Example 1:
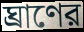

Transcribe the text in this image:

ঘ্রাণের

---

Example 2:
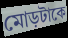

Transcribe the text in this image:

মোড়টাকে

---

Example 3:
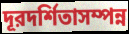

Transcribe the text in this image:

দূরদর্শিতাসম্পন্ন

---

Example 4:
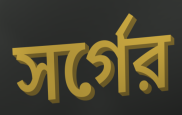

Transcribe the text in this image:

সর্গের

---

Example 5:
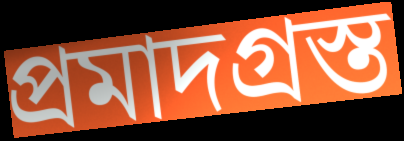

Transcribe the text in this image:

প্রমাদগ্রস্ত